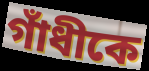
গাঁধীকে